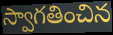
స్వాగతించిన